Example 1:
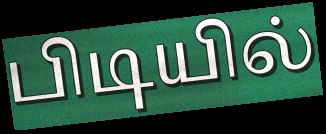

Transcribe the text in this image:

பிடியில்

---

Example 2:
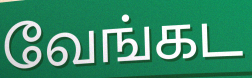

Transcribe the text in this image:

வேங்கட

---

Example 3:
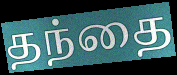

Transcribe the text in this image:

தந்தை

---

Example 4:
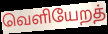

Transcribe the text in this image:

வெளியேறத்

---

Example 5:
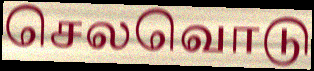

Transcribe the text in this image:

செலவொடு